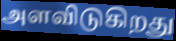
அளவிடுகிறது